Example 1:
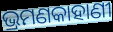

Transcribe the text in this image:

ଭ୍ରମଣକାହାଣୀ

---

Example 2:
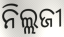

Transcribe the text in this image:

ନିଲ୍ଲଜୀ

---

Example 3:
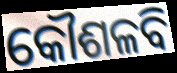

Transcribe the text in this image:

କୌଶଳବି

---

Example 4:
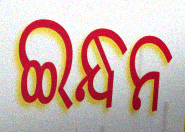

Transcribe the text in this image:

ଇନ୍ଧନ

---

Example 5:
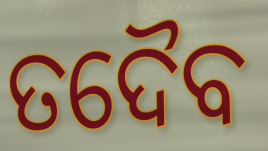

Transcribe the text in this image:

ତଦୈବ